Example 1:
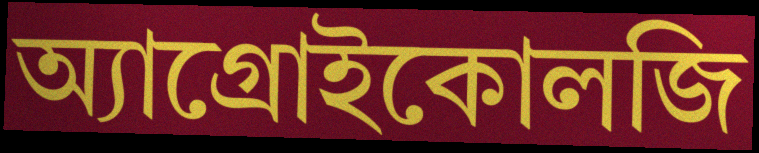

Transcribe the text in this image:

অ্যাগ্রোইকোলজি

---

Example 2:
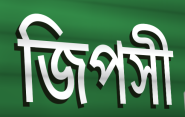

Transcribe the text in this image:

জিপসী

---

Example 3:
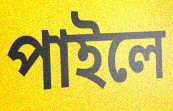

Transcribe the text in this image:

পাইলে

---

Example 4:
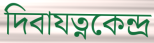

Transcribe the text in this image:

দিবাযত্নকেন্দ্র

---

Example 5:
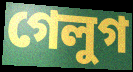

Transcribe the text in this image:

গেলুগ